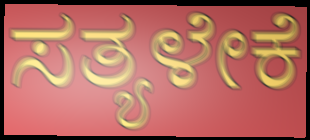
ಸತ್ಯಳೇಕೆ